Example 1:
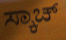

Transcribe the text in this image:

ಸ್ಕಾಚ್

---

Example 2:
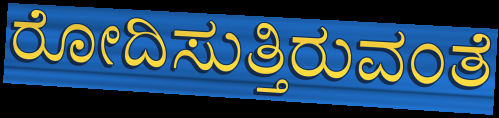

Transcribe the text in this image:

ರೋದಿಸುತ್ತಿರುವಂತೆ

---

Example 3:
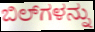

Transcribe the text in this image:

ಬಿಲ್‌ಗಳನ್ನು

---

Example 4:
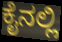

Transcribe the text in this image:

ಕೈನಲ್ಲಿ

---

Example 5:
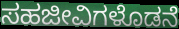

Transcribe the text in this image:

ಸಹಜೀವಿಗಳೊಡನೆ